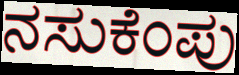
ನಸುಕೆಂಪು